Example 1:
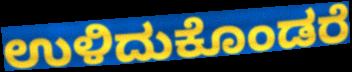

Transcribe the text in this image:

ಉಳಿದುಕೊಂಡರೆ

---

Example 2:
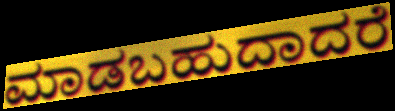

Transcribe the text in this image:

ಮಾಡಬಹುದಾದರೆ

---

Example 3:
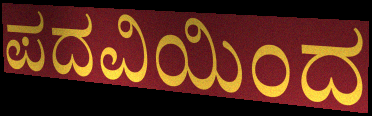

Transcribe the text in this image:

ಪದವಿಯಿಂದ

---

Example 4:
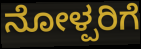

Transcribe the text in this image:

ನೋಳ್ಪರಿಗೆ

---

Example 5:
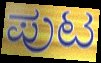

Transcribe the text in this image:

ಪುಟ